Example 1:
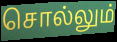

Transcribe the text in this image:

சொல்லும்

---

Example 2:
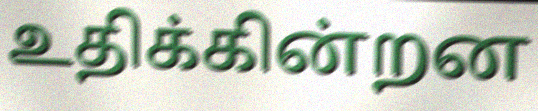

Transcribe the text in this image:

உதிக்கின்றன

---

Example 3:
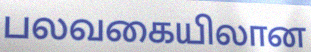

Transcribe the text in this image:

பலவகையிலான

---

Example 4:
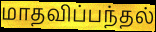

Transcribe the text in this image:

மாதவிப்பந்தல்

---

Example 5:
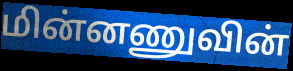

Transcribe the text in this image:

மின்னணுவின்